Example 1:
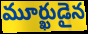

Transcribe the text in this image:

మూర్ఖుడైన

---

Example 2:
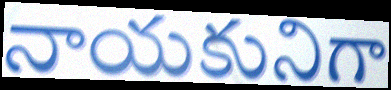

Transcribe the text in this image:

నాయకునిగా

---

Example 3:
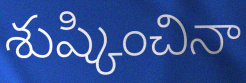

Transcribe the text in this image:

శుష్కించినా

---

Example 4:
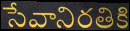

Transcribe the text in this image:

సేవానిరతికి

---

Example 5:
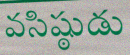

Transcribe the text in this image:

వసిష్ఠుడు